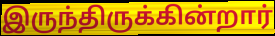
இருந்திருக்கின்றார்